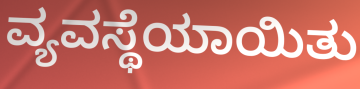
ವ್ಯವಸ್ಥೆಯಾಯಿತು